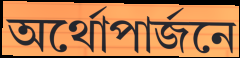
অর্থোপার্জনে